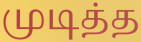
முடித்த